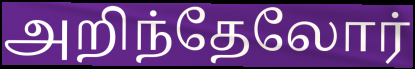
அறிந்தேலோர்